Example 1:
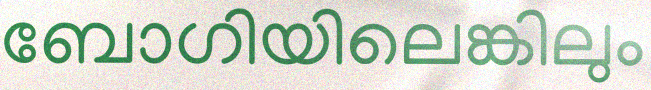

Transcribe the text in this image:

ബോഗിയിലെങ്കിലും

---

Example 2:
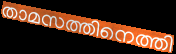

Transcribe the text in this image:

താമസത്തിനെത്തി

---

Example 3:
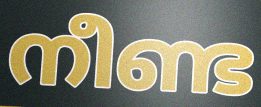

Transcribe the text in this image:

നീണ്ട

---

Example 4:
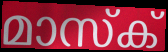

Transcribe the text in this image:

മാസ്‌ക്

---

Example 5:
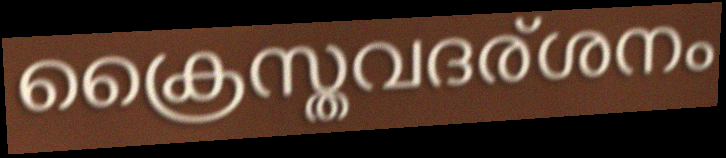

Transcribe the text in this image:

ക്രൈസ്തവദര്ശനം